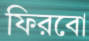
ফিরবো